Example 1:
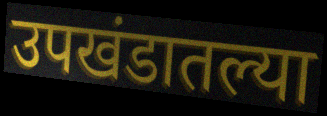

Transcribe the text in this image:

उपखंडातल्या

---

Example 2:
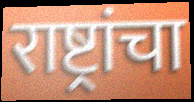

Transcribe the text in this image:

राष्ट्रांचा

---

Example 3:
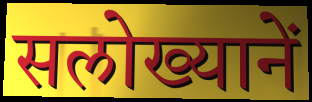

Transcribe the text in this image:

सलोख्यानें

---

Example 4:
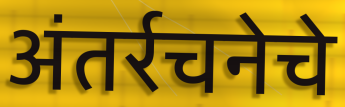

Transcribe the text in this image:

अंतर्रचनेचे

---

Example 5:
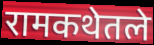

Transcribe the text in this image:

रामकथेतले